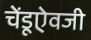
चेंडूऐवजी